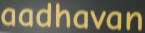
aadhavan